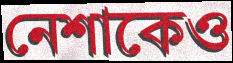
নেশাকেও